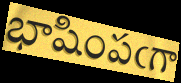
భాషింపఁగా